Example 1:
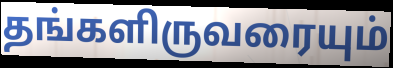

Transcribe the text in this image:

தங்களிருவரையும்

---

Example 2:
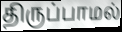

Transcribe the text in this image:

திருப்பாமல்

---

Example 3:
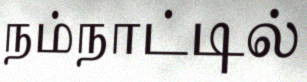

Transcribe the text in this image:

நம்நாட்டில்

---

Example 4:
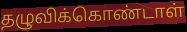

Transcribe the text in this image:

தழுவிக்கொண்டாள்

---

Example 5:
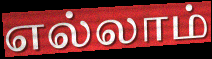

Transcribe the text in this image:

எல்லாம்